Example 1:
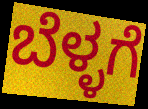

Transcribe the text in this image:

ಬೆಳ್ಳಗೆ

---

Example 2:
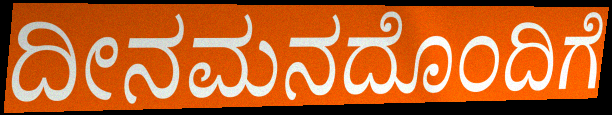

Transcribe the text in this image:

ದೀನಮನದೊಂದಿಗೆ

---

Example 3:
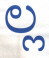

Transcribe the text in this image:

ಲ್ಲ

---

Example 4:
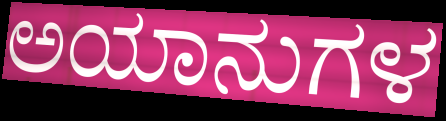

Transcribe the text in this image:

ಅಯಾನುಗಳ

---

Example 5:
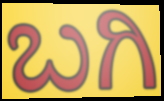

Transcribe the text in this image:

ಬಗಿ